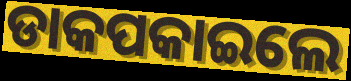
ଡାକପକାଇଲେ